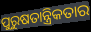
ପୁରୁଷତାନ୍ତ୍ରିକତାର